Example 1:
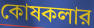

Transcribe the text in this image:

কোষকলার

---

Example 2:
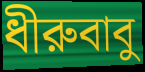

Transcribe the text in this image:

ধীরুবাবু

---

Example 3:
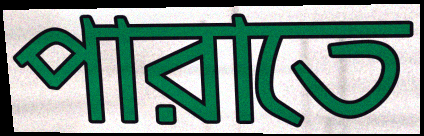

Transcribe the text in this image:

পারাতে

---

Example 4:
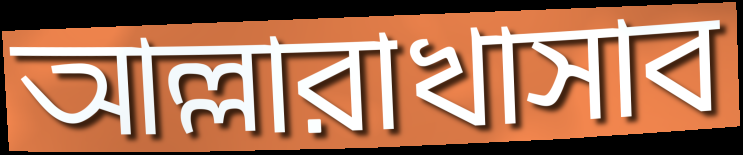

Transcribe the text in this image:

আল্লারাখাসাব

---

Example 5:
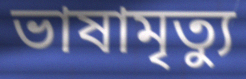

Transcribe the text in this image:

ভাষামৃত্যু